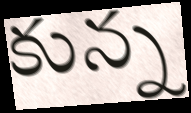
కున్న